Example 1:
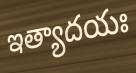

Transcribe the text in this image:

ఇత్యాదయః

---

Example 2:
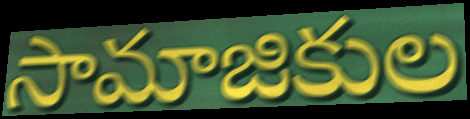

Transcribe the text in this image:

సామాజికుల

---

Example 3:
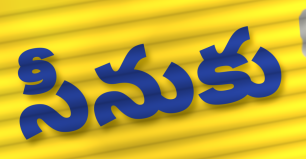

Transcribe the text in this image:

సీనుకు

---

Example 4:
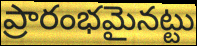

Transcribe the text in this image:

ప్రారంభమైనట్టు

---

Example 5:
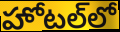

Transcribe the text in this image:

హోటల్‌లో